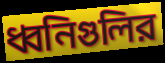
ধ্বনিগুলির